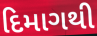
દિમાગથી